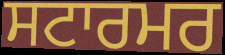
ਸਟਾਰਮਰ